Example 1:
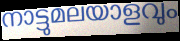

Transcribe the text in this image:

നാട്ടുമലയാളവും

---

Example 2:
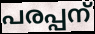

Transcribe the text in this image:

പരപ്പന്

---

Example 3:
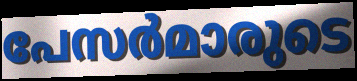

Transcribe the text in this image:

പേസർമാരുടെ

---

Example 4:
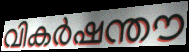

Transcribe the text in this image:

വികർഷന്തൗ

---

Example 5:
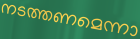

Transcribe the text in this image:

നടത്തണമെന്നാ